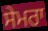
ਸੇਮਰਾ